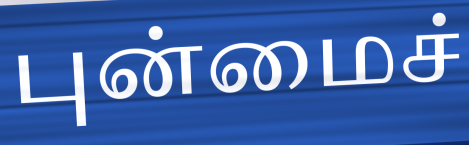
புன்மைச்